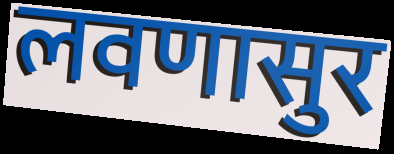
लवणासुर